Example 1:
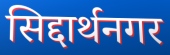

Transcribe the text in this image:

सिद्दार्थनगर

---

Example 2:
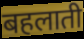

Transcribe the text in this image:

बहलाती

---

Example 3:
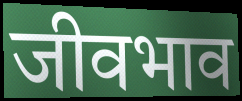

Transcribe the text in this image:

जीवभाव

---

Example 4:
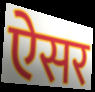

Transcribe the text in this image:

ऐसर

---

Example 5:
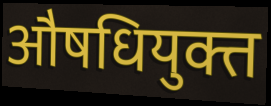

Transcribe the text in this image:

औषधियुक्त